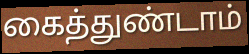
கைத்துண்டாம்